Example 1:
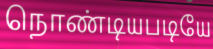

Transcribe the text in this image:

நொண்டியபடியே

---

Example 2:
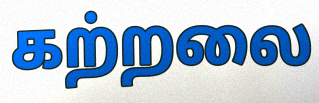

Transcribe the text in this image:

கற்றலை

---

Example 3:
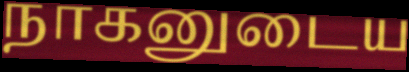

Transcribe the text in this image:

நாகனுடைய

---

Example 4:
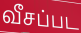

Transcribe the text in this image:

வீசப்பட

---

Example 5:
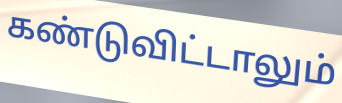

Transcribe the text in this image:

கண்டுவிட்டாலும்